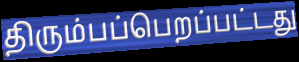
திரும்பப்பெறப்பட்டது